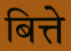
बित्ते